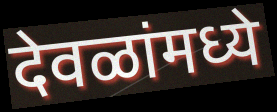
देवळांमध्ये